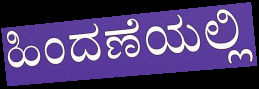
ಹಿಂದಣೆಯಲ್ಲಿ